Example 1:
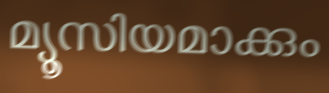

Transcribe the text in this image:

മ്യൂസിയമാക്കും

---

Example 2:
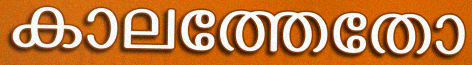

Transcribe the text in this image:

കാലത്തേതോ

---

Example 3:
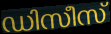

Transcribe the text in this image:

ഡിസീസ്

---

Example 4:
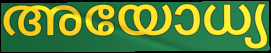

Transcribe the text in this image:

അയോധ്യ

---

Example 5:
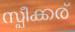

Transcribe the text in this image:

സ്പീക്കര്